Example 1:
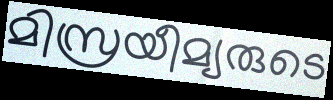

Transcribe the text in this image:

മിസ്രയീമ്യരുടെ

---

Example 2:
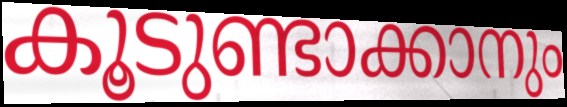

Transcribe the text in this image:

കൂടുണ്ടാക്കാനും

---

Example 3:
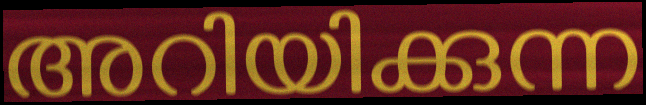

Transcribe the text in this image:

അറിയിക്കുന്ന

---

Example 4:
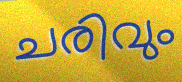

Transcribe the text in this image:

ചരിവും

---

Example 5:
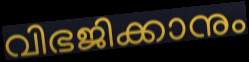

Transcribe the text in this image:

വിഭജിക്കാനും